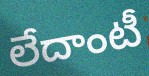
లేదాంటీ